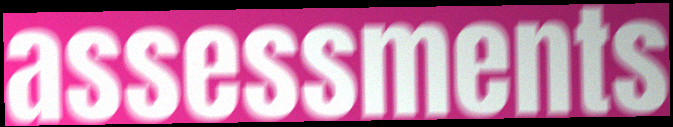
assessments